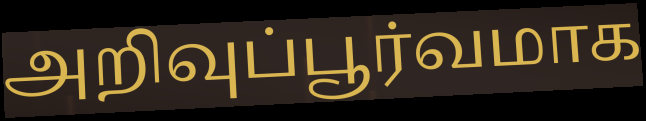
அறிவுப்பூர்வமாக